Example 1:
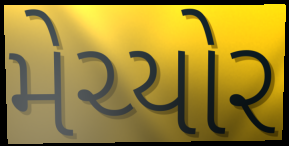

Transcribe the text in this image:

મેચ્યોર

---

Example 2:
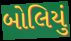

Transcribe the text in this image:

બોલિયું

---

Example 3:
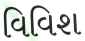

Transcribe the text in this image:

વિવિશ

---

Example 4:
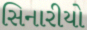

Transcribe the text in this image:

સિનારીયો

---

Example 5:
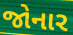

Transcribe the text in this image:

જોનાર